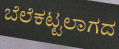
ಬೆಲೆಕಟ್ಟಲಾಗದ